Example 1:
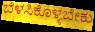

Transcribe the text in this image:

ಬೆಳಸಿಕೊಳ್ಳಬೇಕು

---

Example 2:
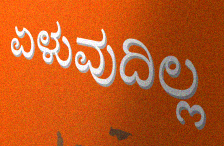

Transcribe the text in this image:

ಏಳುವುದಿಲ್ಲ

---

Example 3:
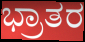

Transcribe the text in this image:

ಭ್ರಾತರ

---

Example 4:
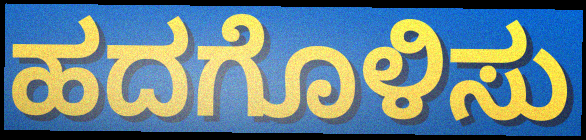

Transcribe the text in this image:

ಹದಗೊಳಿಸು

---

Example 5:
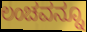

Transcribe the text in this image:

ಲಂಚವನ್ನೂ